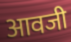
आवजी